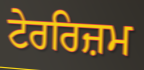
ਟੇਰਰਿਜ਼ਮ